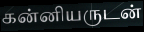
கன்னியருடன்